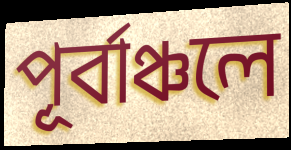
পূর্বাঞ্চলে